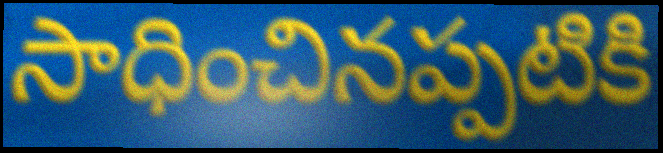
సాధించినప్పటికి